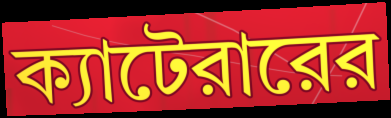
ক্যাটেরারের